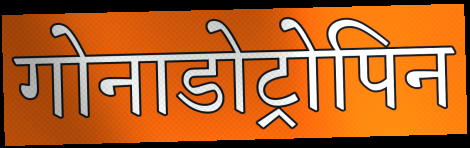
गोनाडोट्रोपिन